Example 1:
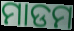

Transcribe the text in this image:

ମାଡମ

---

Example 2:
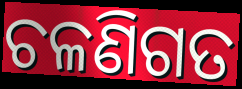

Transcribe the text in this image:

ଚଳଣିଗତ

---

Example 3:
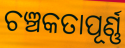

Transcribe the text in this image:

ଚଞ୍ଚକତାପୂର୍ଣ୍ଣ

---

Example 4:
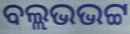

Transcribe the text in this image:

ବଲ୍ଲଭଭଟ୍ଟ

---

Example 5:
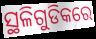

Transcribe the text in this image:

ସ୍ଥଳିଗୁଡିକରେ